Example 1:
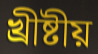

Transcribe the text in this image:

খ্ৰীষ্টীয়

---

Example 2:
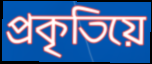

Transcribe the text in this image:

প্ৰকৃতিয়ে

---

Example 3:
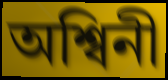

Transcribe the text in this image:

অশ্বিনী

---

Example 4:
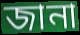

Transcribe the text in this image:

জানা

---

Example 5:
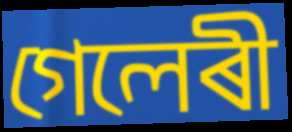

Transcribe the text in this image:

গেলেৰী